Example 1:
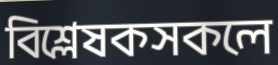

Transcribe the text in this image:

বিশ্লেষকসকলে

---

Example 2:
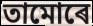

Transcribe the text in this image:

তামোৰে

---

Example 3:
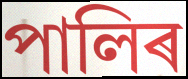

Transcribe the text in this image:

পালিৰ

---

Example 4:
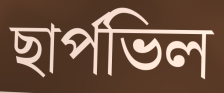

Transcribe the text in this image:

ছাৰ্পভিল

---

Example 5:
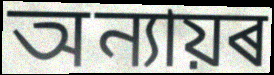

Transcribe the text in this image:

অন্যায়ৰ